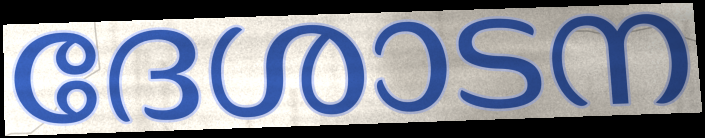
ദേശാടന